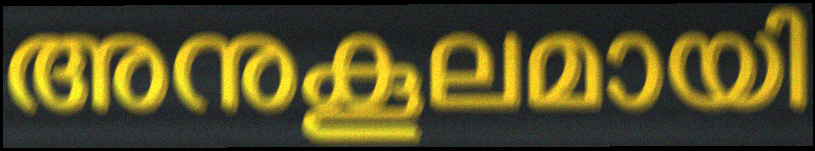
അനുകൂലമായി